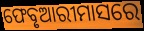
ଫେବୃଆରୀମାସରେ